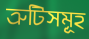
ত্ৰুটিসমূহ